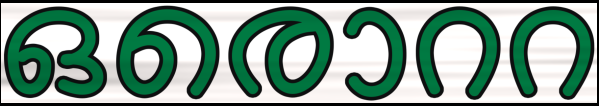
ഒരൊററ